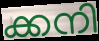
ക്കനി